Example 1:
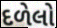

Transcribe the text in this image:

દળેલો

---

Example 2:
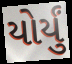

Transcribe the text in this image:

યોર્યું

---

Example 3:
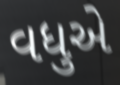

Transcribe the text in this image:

વધુએ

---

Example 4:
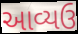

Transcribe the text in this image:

આવ્યઉ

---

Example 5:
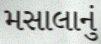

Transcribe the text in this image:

મસાલાનું